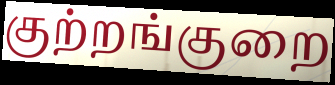
குற்றங்குறை